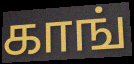
காங்